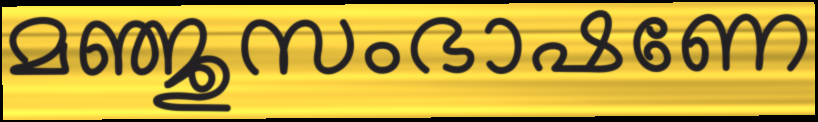
മഞ്ജുസംഭാഷണേ